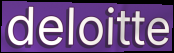
deloitte